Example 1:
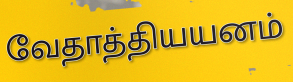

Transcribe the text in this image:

வேதாத்தியயனம்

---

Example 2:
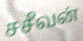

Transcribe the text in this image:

சசீவன்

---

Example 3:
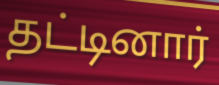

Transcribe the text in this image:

தட்டினார்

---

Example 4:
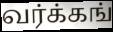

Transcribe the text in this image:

வர்க்கங்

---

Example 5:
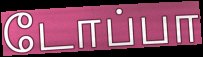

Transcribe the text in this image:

டோப்பா